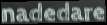
nadedare